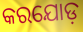
କରଯୋଡ଼